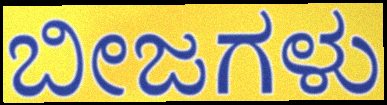
ಬೀಜಗಳು